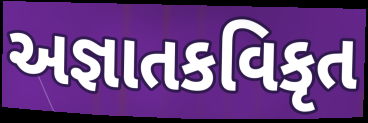
અજ્ઞાતકવિકૃત